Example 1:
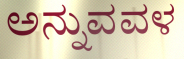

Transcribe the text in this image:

ಅನ್ನುವವಳ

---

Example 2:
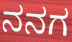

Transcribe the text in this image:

ನನಗ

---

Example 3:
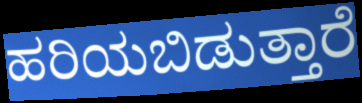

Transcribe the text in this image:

ಹರಿಯಬಿಡುತ್ತಾರೆ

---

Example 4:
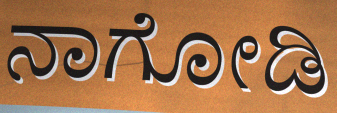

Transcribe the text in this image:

ನಾಗೋಡಿ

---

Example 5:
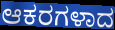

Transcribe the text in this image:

ಆಕರಗಳಾದ